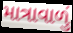
માત્રાવાળું